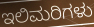
ಇಲಿಮರಿಗಳು